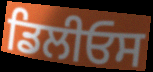
ਡਿਲੀਓਸ